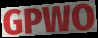
GPWO